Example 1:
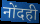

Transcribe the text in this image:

नोंदही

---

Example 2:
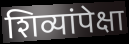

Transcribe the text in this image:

शिव्यांपेक्षा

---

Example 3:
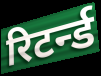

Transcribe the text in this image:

रिटर्न्ड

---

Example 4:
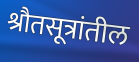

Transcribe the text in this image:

श्रौतसूत्रांतील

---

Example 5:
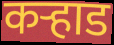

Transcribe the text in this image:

कऱ्हाड